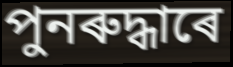
পুনৰুদ্ধাৰে